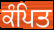
ਕੰਪਿਤ